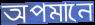
অপমানে